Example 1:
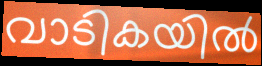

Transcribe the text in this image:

വാടികയിൽ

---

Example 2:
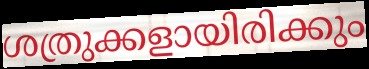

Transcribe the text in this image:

ശത്രുക്കളായിരിക്കും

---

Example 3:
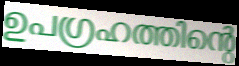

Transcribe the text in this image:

ഉപഗ്രഹത്തിന്റെ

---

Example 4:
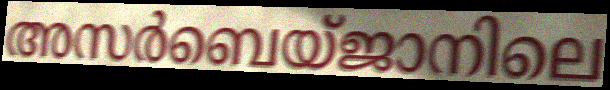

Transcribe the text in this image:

അസർബെയ്ജാനിലെ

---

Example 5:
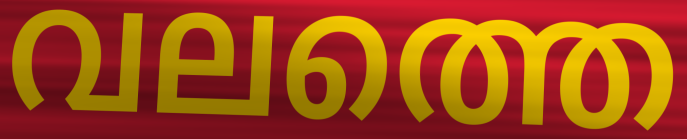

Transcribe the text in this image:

വലത്തെ